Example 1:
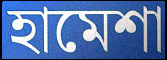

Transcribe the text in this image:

হামেশা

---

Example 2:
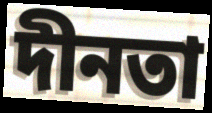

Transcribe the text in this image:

দীনতা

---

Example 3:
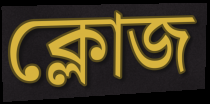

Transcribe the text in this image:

ক্লোজ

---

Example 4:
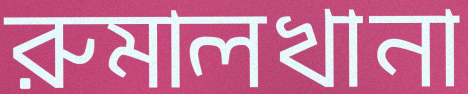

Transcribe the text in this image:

রুমালখানা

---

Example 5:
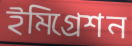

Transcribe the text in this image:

ইমিগ্রেশন